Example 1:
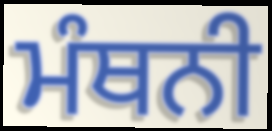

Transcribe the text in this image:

ਮੰਥਨੀ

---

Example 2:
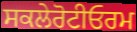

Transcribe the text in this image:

ਸਕਲੇਰੋਟੀਓਰਮ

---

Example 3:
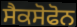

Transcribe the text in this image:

ਸੈਕਸੋਫੋਨ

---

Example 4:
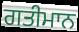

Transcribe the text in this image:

ਗਤੀਮਾਨ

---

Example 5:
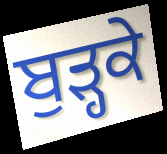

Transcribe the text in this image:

ਬੁੜ੍ਹਕੇ